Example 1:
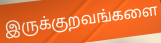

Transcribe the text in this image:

இருக்குறவங்களை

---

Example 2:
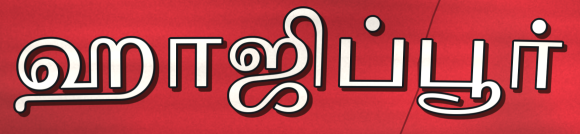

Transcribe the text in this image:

ஹாஜிப்பூர்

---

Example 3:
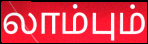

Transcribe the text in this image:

லாம்பும்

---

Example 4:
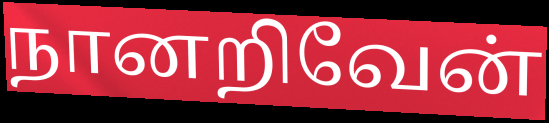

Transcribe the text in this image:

நானறிவேன்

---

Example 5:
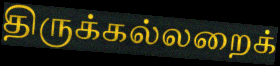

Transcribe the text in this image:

திருக்கல்லறைக்